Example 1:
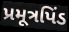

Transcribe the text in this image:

પ્રમૂત્રપિંડ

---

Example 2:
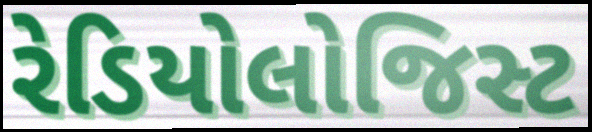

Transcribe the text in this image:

રેડિયોલોજિસ્ટ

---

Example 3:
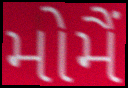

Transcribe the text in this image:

મોમૈં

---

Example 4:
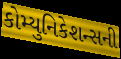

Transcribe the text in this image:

કોમ્યુનિકેશન્સની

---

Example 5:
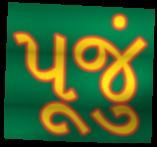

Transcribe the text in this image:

પૂજું